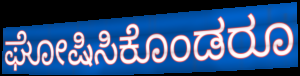
ಘೋಷಿಸಿಕೊಂಡರೂ